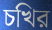
চখির